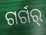
ଗର୍ଗର୍